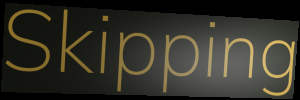
Skipping